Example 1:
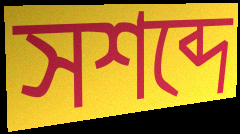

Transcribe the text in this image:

সশব্দে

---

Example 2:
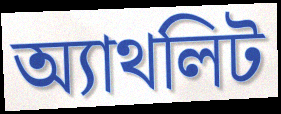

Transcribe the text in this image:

অ্যাথলিট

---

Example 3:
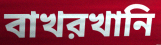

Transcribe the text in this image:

বাখরখানি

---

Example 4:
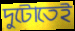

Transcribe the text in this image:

দুটোতেই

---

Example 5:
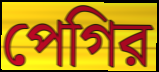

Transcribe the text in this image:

পেগির